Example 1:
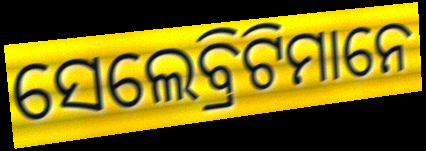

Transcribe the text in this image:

ସେଲେବ୍ରିଟିମାନେ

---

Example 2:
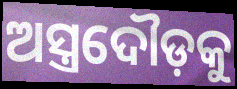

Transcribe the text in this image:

ଅସ୍ତ୍ରଦୌଡ଼କୁ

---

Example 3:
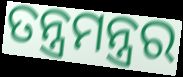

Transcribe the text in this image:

ତନ୍ତ୍ରମନ୍ତ୍ରର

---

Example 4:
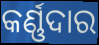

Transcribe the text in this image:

କର୍ଣ୍ଣଦାର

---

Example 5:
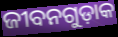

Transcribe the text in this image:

ଜୀବନଗୁଡ଼ାକ